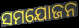
ସମଯୋଜନ